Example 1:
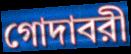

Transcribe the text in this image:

গোদাবরী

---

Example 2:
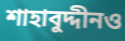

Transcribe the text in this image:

শাহাবুদ্দীনও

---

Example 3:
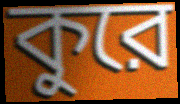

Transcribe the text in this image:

কুরে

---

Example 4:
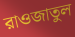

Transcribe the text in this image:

রাওজাতুল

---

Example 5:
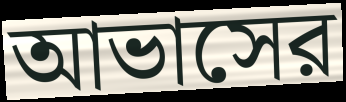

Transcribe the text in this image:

আভাসের